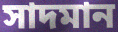
সাদমান